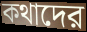
কথাদের